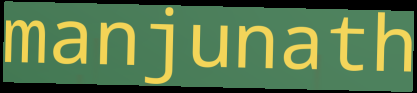
manjunath